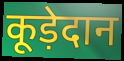
कूड़ेदान